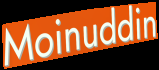
Moinuddin